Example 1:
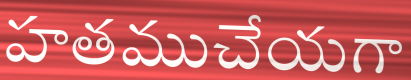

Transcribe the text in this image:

హతముచేయగా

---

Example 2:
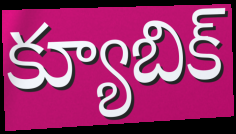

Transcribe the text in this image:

క్యూబిక్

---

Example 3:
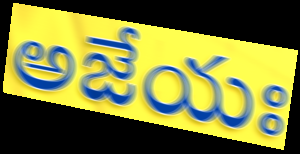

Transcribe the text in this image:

అజేయః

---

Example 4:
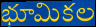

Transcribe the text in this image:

భూమికల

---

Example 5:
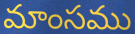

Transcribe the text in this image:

మాంసము